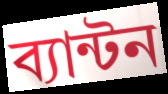
ব্যান্টন